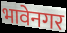
भावेनगर